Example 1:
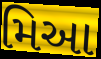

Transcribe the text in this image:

મિઆ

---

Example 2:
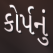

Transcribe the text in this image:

કોર્પનું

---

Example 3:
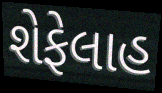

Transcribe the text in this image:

શેફેલાહ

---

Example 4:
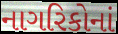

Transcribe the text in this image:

નાગરિકોનાં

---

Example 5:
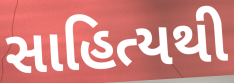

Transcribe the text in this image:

સાહિત્યથી